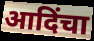
आदिंचा